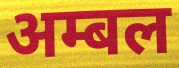
अम्बल